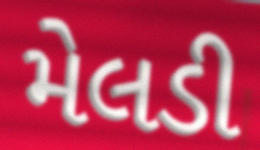
મેલડી